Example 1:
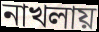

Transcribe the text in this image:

নাখলায়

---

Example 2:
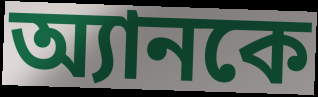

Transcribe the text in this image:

অ্যানকে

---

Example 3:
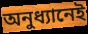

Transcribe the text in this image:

অনুধ্যানেই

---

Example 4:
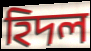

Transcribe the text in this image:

হিদল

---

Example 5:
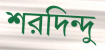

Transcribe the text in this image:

শরদিন্দু